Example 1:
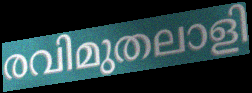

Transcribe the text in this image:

രവിമുതലാളി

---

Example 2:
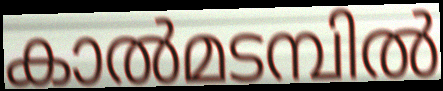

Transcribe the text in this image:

കാൽമടമ്പിൽ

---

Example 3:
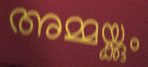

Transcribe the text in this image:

അമ്മയ്ക്കും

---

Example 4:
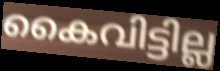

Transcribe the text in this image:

കൈവിട്ടില്ല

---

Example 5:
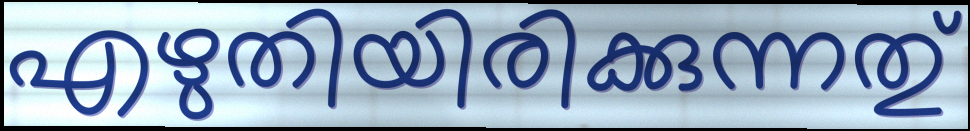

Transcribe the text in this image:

എഴുതിയിരിക്കുന്നതു്